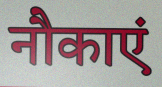
नौकाएं